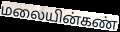
மலையின்கண்